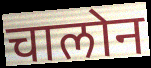
चालोन